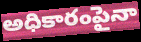
అధికారంపైనా